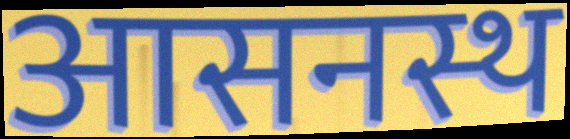
आसनस्थ